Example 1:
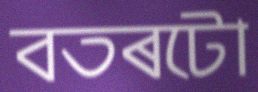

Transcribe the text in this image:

বতৰটো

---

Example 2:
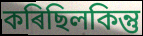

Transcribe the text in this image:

কৰিছিলকিন্তু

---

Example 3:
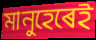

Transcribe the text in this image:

মানুহেৰেই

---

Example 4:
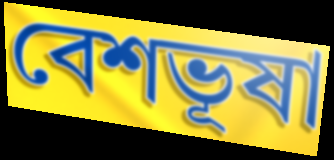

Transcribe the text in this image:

বেশভূষা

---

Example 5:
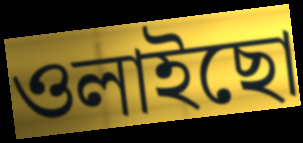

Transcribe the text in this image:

ওলাইছো